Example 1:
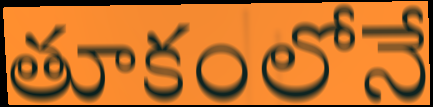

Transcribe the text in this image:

తూకంలోనే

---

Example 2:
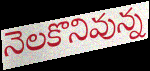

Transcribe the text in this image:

నెలకొనివున్న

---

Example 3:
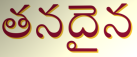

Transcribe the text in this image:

తనదైన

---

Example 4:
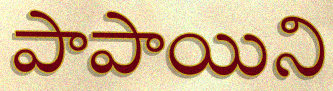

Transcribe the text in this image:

పాపాయిని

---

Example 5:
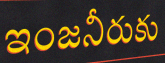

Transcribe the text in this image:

ఇంజనీరుకు